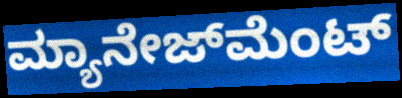
ಮ್ಯಾನೇಜ್‍ಮೆಂಟ್